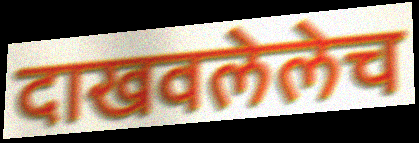
दाखवलेलेच